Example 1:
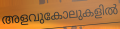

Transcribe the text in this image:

അളവുകോലുകളിൽ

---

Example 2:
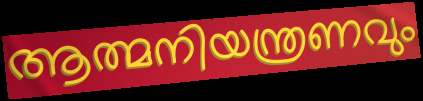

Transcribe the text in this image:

ആത്മനിയന്ത്രണവും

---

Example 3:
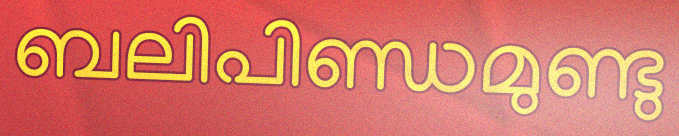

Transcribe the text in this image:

ബലിപിണ്ഡമുണ്ടു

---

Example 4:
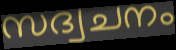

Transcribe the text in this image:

സദ്വചനം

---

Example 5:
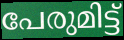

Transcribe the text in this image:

പേരുമിട്ട്